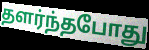
தளர்ந்தபோது